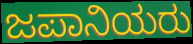
ಜಪಾನಿಯರು